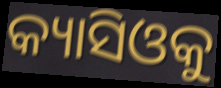
କ୍ୟାସିଓକୁ